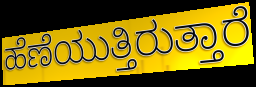
ಹೆಣೆಯುತ್ತಿರುತ್ತಾರೆ